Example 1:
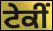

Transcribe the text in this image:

ਟੇਕੀਂ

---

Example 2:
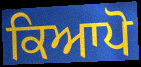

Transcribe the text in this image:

ਕਿਆਪੋ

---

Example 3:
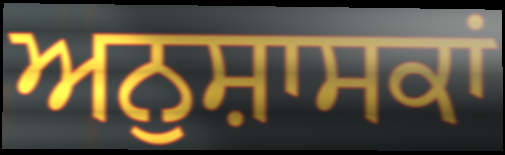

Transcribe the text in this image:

ਅਨੁਸ਼ਾਸਕਾਂ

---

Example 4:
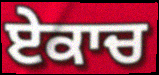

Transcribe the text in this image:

ਏਕਾਚ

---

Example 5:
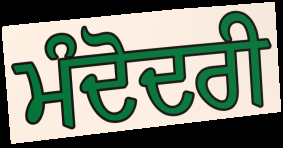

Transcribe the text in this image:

ਮੰਦੋਦਰੀ